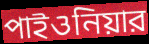
পাইওনিয়ার